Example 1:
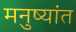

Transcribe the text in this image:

मनुष्यांत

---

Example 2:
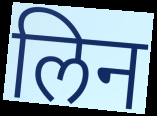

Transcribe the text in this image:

लिन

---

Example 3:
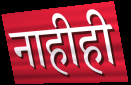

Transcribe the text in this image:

नाहीही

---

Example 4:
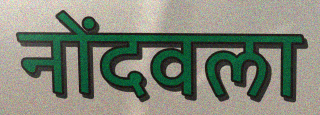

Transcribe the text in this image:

नोंदवला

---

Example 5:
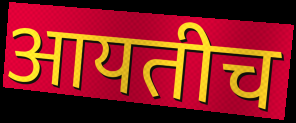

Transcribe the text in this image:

आयतीच